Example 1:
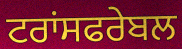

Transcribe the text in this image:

ਟਰਾਂਸਫਰੇਬਲ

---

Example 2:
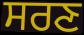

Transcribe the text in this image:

ਸਰਣ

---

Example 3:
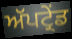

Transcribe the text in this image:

ਅੱਪਟ੍ਰੇਂਡ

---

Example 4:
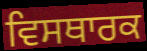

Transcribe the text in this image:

ਵਿਸਥਾਰਕ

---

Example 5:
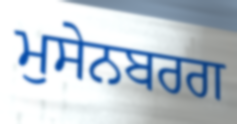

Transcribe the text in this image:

ਮੁਸੇਨਬਰਗ